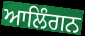
ਆਲਿੰਗਨ